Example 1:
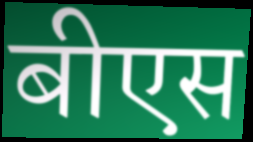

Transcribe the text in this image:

बीएस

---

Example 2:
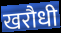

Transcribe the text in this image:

खरौधी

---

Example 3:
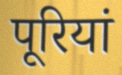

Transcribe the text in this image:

पूरियां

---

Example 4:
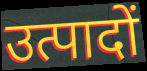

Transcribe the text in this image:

उत्पादों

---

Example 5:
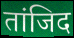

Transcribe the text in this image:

तांजिद